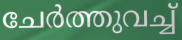
ചേർത്തുവച്ച്